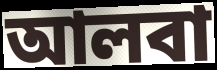
আলবা